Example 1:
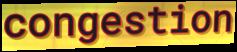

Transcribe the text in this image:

congestion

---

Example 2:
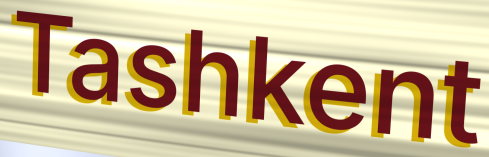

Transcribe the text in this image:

Tashkent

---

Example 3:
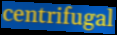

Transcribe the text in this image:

centrifugal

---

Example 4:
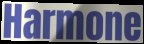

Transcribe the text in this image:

Harmone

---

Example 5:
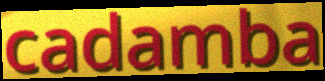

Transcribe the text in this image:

cadamba